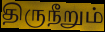
திருநீறும்